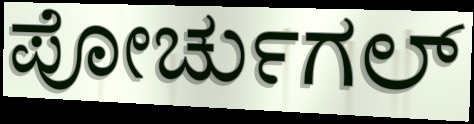
ಪೋರ್ಚುಗಲ್